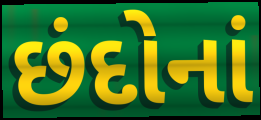
છંદોનાં